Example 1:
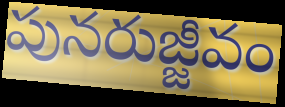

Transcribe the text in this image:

పునరుజ్జీవం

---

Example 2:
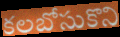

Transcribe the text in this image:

కలబోసుకొని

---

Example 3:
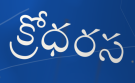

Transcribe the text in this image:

క్రోధరస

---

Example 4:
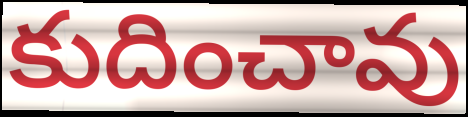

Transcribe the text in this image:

కుదించావు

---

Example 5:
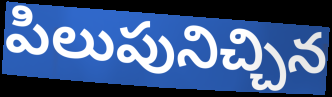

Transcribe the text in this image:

పిలుపునిచ్చిన